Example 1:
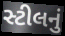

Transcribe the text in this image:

સ્ટીલનું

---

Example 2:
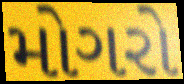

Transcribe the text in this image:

મોગરો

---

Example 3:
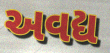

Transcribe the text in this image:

અવદ્ય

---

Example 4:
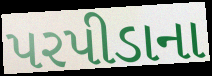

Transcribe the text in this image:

પરપીડાના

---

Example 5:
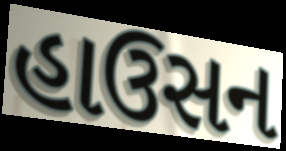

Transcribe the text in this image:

હાઉસન